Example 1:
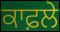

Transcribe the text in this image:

ਕਾਫ਼ਲੇ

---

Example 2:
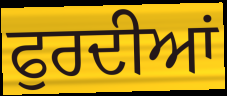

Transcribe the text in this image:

ਫੁਰਦੀਆਂ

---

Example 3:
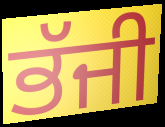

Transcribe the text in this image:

ਭੱਜੀ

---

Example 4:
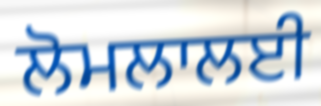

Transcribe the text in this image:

ਲੋਮਲਾਲਈ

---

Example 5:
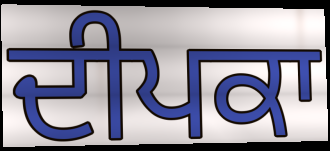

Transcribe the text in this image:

ਦੀਪਕਾ